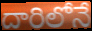
దారిలోనే